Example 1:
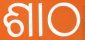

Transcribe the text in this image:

ଶାଠ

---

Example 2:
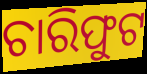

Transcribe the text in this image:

ଚାରିଫୁଟ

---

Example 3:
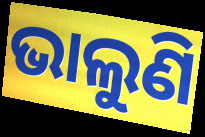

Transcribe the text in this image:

ଭାଲୁଣି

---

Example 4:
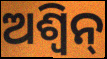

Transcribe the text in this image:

ଅଶ୍ବିନ୍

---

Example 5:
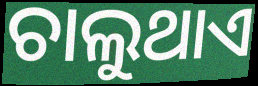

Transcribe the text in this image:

ଚାଲୁଥାଏ